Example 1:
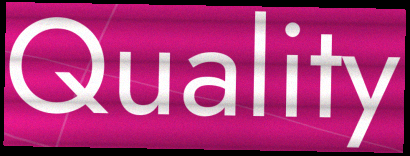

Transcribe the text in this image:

Quality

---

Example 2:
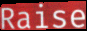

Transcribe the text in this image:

Raise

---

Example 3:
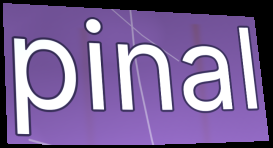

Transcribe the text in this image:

pinal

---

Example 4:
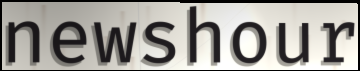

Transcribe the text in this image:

newshour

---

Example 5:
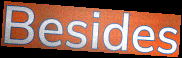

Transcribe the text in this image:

Besides